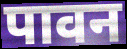
पावन